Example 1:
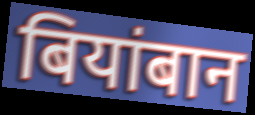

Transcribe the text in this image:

बियांबान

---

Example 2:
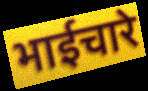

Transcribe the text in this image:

भाईचारे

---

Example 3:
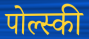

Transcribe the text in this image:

पोल्स्की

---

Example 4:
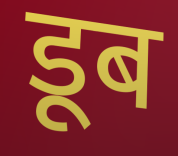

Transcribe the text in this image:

डूब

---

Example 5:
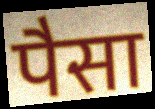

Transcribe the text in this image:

पैसा